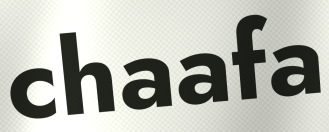
chaafa